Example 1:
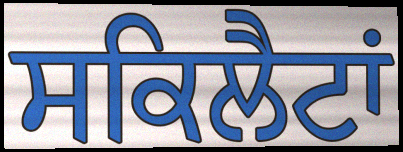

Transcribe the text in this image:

ਸਕਿਲੈਟਾਂ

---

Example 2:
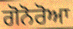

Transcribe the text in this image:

ਗੋਨੋਰੋਆ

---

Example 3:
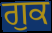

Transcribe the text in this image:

ਗੁਕ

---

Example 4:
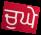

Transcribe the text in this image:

ਚੁਘੇ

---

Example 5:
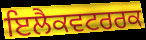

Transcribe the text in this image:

ਇਲੈਕਵਟਰਰਕ